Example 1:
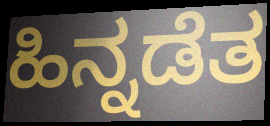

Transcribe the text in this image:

ಹಿನ್ನಡೆತ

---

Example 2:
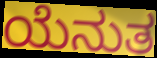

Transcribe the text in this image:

ಯೆನುತ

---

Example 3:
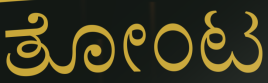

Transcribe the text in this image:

ತೋಂಟ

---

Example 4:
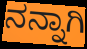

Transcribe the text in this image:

ನನ್ನಾಗಿ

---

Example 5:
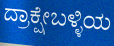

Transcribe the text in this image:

ದ್ರಾಕ್ಷೇಬಳ್ಳಿಯ